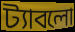
ট্যাবলো